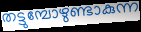
തട്ടുമ്പോഴുണ്ടാകുന്ന